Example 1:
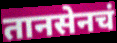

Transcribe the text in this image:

तानसेनचं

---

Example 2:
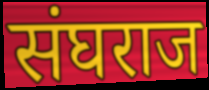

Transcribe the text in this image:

संघराज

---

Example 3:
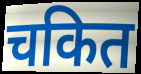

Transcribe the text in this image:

चकित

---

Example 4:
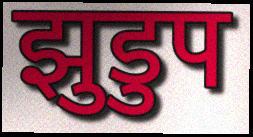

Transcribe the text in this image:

झुडुप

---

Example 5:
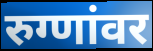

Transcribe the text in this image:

रुग्णांवर